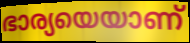
ഭാര്യയെയാണ്